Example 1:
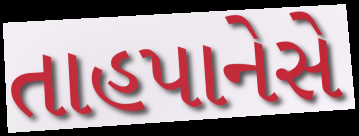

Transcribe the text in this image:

તાહપાનેસે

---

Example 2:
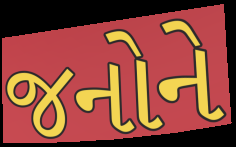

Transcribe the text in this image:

જનોને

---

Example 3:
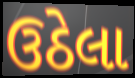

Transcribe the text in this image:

ઉઠેલા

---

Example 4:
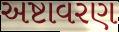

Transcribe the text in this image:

અષ્ટાવરણ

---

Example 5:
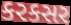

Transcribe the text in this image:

કરકસર